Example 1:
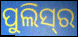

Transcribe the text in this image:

ପୁଲିସ୍‌ର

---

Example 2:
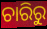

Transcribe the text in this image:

ଚାରିରୁ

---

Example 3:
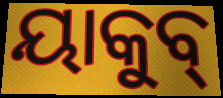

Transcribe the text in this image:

ୟାକୁବ୍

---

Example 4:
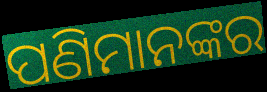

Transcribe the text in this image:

ପଣିମାନଙ୍କର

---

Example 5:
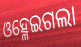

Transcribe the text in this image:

ଓହ୍ଳେଇଗଲା